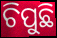
ଚିପୁଛି